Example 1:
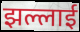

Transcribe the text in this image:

झल्लाई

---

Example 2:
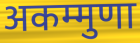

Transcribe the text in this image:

अकम्मुणा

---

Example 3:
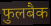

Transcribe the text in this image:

फुलबैक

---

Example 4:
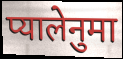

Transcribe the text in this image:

प्यालेनुमा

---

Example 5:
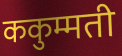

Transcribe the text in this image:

ककुम्मती